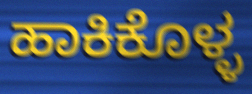
ಹಾಕಿಕೊಳ್ಳ